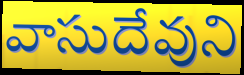
వాసుదేవుని